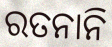
ରତନାନି